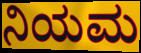
ನಿಯಮ